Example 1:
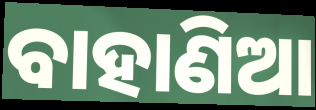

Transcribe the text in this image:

ବାହାଣିଆ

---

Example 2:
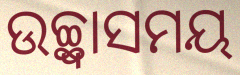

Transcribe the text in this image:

ଉଚ୍ଛ୍ୱାସମୟ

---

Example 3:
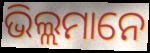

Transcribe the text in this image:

ଭିଲ୍ଲମାନେ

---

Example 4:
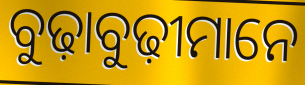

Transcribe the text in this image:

ବୁଢ଼ାବୁଢ଼ୀମାନେ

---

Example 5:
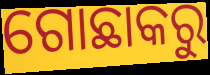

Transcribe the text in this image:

ଗୋଛାକରୁ